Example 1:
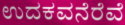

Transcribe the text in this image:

ಉದಕವನೆರೆವೆ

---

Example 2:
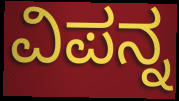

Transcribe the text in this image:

ವಿಪನ್ನ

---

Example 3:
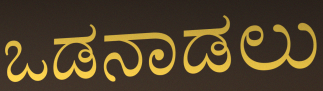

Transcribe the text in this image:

ಒಡನಾಡಲು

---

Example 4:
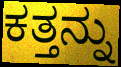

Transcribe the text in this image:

ಕತ್ತನ್ನು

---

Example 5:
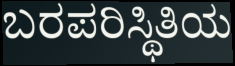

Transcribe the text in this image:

ಬರಪರಿಸ್ಥಿತಿಯ